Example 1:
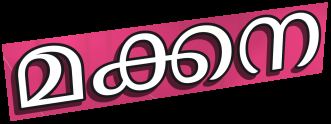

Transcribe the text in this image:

മക്കന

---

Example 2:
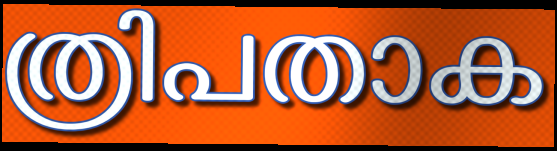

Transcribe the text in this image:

ത്രിപതാക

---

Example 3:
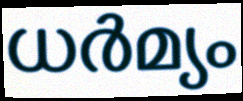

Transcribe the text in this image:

ധർമ്യം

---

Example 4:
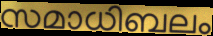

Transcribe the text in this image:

സമാധിബലം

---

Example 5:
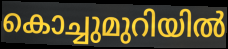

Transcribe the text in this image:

കൊച്ചുമുറിയിൽ